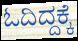
ಓದಿದ್ದಕ್ಕೆ